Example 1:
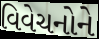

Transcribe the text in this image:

વિવેચનોને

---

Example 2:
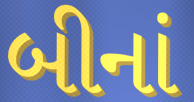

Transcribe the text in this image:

બીનાં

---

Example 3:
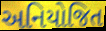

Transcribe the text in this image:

અનિયોજિત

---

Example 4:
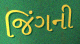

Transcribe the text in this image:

જિંગની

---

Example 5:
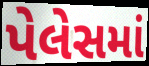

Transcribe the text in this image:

પેલેસમાં